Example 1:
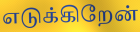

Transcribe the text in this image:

எடுக்கிறேன்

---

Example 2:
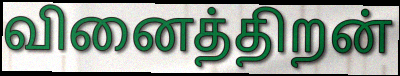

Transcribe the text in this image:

வினைத்திறன்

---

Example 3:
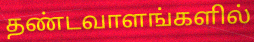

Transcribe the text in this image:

தண்டவாளங்களில்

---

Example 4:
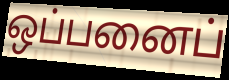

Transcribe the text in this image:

ஒப்பனைப்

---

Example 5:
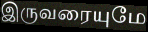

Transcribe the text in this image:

இருவரையுமே